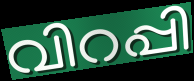
വിറപ്പി